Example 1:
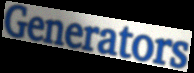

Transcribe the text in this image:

Generators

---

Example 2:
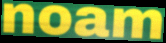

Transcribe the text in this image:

noam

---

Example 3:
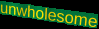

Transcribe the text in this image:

unwholesome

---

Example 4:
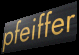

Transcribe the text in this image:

pfeiffer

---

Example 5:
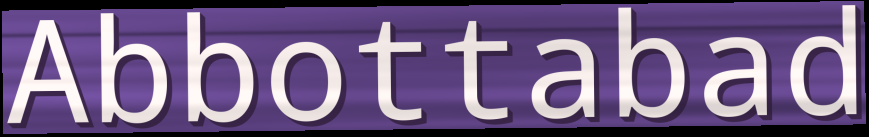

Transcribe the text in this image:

Abbottabad